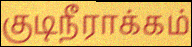
குடிநீராக்கம்